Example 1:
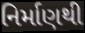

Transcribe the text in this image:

નિર્માણથી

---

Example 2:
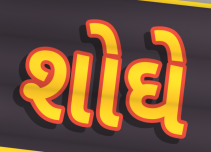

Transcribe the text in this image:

શોઘે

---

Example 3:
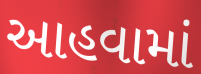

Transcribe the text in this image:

આહવામાં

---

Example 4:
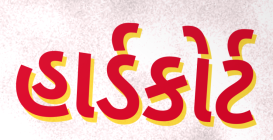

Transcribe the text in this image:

હાર્ડકોર્ટ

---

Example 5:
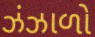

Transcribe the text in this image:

ઝંઝાળો